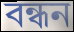
বন্ধন